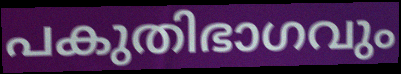
പകുതിഭാഗവും